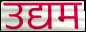
उद्यम